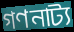
গণনাট্য